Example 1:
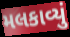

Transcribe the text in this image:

મલકાવ્યું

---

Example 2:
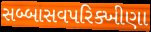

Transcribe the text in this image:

સબ્બાસવપરિક્ખીણા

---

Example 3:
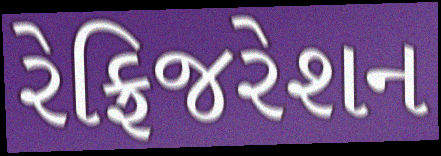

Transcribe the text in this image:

રેફ્રિજરેશન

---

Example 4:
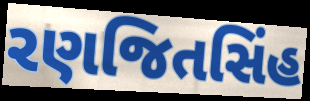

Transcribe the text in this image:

રણજિતસિંહ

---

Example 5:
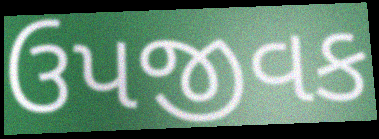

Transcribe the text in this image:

ઉપજીવક